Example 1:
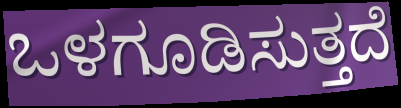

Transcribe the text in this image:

ಒಳಗೂಡಿಸುತ್ತದೆ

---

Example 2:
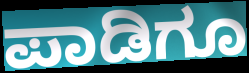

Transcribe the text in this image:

ಪಾಡಿಗೂ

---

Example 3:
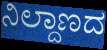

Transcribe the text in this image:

ನಿಲ್ದಾಣದ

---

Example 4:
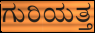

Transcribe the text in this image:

ಗುರಿಯತ್ತ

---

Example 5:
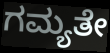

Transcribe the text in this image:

ಗಮ್ಯತೇ